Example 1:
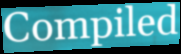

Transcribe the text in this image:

Compiled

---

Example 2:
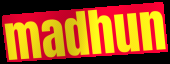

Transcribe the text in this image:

madhun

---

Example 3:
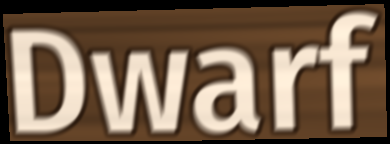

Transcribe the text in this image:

Dwarf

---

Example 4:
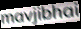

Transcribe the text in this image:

mavjibhai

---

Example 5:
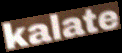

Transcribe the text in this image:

kalate